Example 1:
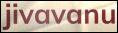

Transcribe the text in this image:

jivavanu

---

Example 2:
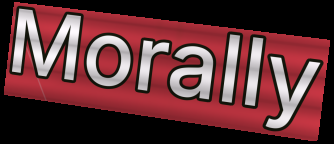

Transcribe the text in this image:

Morally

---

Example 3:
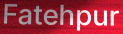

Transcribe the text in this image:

Fatehpur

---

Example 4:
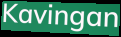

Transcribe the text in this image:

Kavingan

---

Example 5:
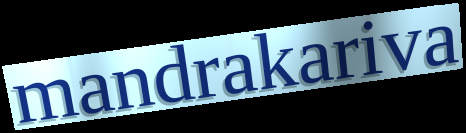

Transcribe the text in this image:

mandrakariva